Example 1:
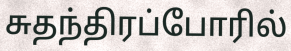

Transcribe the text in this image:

சுதந்திரப்போரில்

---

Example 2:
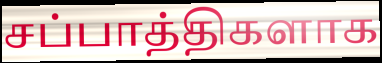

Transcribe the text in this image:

சப்பாத்திகளாக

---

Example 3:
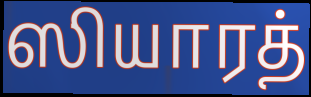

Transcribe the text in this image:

ஸியாரத்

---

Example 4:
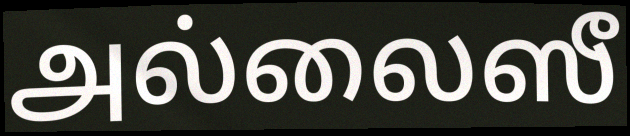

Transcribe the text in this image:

அல்லைஸீ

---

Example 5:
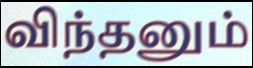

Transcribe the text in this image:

விந்தனும்